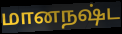
மானநஷ்ட